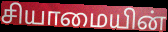
சியாமையின்